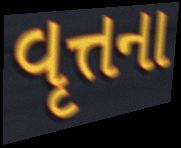
વૃત્તના